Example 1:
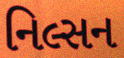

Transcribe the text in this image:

નિલ્સન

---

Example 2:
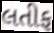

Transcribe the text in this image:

લતીફ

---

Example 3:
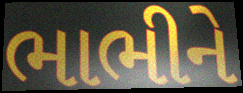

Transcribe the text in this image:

ભાભીને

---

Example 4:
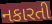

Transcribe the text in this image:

નકારતી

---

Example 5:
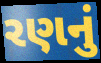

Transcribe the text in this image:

રણનું